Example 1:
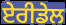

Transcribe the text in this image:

ਏਰੀਡੇਲ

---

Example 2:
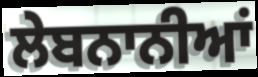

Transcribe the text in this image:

ਲੇਬਨਾਨੀਆਂ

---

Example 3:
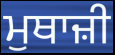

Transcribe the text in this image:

ਮੁਥਾਜ਼ੀ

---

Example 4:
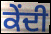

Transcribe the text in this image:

ਕੇਂਦੀ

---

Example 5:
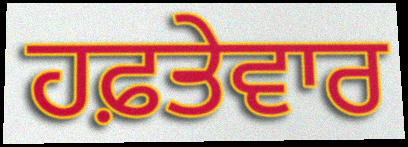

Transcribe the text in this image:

ਹਫ਼ਤੇਵਾਰ